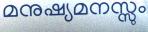
മനുഷ്യമനസ്സും